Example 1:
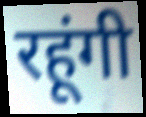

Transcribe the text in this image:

रहूंगी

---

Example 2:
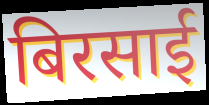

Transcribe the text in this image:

बिरसाई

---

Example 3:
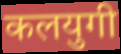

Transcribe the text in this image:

कलयुगी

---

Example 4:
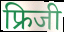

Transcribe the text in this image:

फ्रिजी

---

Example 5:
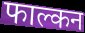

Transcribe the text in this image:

फाल्कन